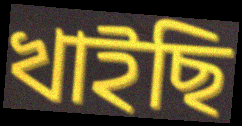
খাইছি